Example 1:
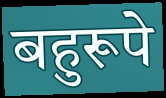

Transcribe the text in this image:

बहुरूपे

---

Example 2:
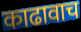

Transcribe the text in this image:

काढावाच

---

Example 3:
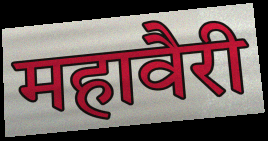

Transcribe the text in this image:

महावैरी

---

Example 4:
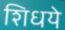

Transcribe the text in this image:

शिधये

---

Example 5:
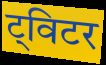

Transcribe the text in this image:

ट्‌विटर